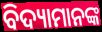
ବିଦ୍ୟାମାନଙ୍କ